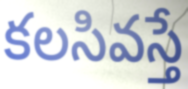
కలసివస్తే